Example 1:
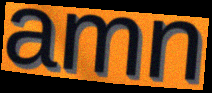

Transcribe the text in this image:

amn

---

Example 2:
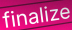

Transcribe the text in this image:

finalize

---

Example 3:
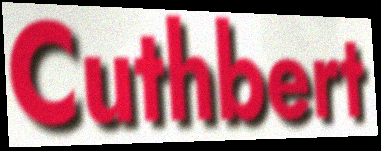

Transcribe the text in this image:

Cuthbert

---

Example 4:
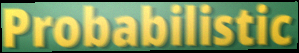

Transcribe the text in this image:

Probabilistic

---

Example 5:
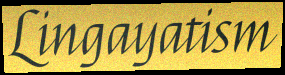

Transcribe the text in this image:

Lingayatism